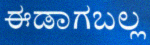
ಈಡಾಗಬಲ್ಲ